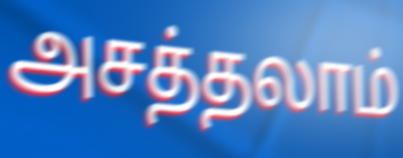
அசத்தலாம்